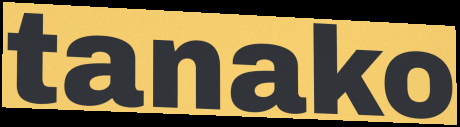
tanako